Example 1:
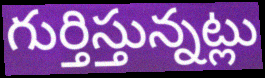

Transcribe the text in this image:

గుర్తిస్తున్నట్లు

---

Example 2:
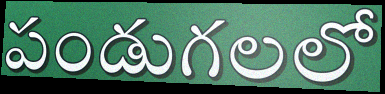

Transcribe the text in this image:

పండుగలలో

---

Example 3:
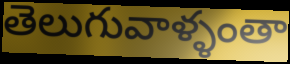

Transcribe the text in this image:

తెలుగువాళ్ళంతా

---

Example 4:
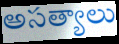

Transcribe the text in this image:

అసత్యాలు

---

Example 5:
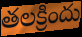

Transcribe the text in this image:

తలక్రిందు